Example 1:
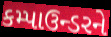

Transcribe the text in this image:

કમ્પાઉન્ડરને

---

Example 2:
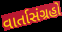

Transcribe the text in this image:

વાર્તાસંગ્રહો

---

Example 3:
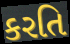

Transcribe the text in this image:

કરતિ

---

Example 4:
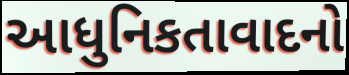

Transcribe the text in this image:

આધુનિકતાવાદનો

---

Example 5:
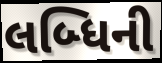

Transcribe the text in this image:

લબ્ધિની